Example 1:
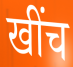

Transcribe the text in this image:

खींच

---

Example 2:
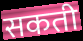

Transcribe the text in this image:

सकती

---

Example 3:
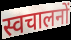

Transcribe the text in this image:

स्वचालनों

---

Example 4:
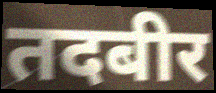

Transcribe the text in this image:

तदबीर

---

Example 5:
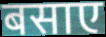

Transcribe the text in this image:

बसाए